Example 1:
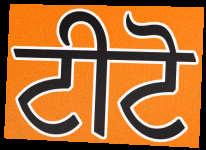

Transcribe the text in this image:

ਟੀਟੋ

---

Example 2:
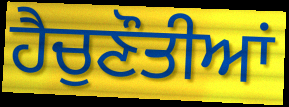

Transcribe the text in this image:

ਹੈਚੁਣੌਤੀਆਂ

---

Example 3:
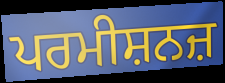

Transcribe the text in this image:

ਪਰਮੀਸ਼ਨਜ਼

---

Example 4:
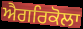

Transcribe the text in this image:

ਐਗਰਿਕੋਲਾ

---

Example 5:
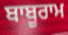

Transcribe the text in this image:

ਬਾਬੂਰਾਮ